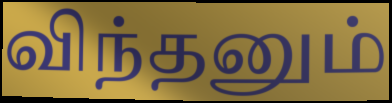
விந்தனும்